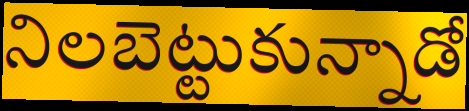
నిలబెట్టుకున్నాడో